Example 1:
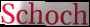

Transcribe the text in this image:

Schoch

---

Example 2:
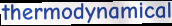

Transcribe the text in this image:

thermodynamical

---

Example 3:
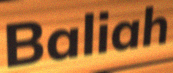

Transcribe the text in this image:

Baliah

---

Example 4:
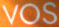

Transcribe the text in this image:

VOS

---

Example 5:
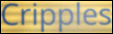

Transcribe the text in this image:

Cripples